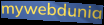
mywebdunia